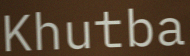
Khutba